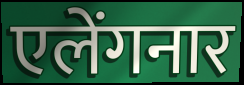
एलेंगनार